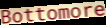
Bottomore